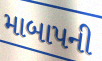
માબાપની